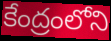
కేంద్రంలోని